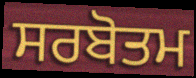
ਸਰਬੋਤਮ